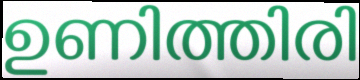
ഉണിത്തിരി